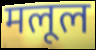
मलूल